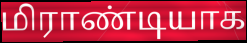
மிராண்டியாக